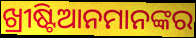
ଖ୍ରୀଷ୍ଟିଆନମାନଙ୍କର